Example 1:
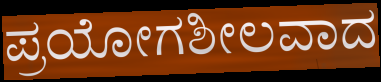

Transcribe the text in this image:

ಪ್ರಯೋಗಶೀಲವಾದ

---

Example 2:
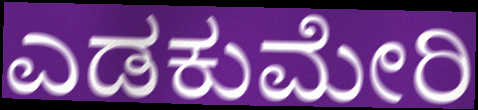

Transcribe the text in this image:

ಎಡಕುಮೇರಿ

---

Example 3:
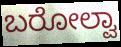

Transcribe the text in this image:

ಬರೋಲ್ವಾ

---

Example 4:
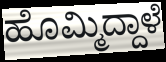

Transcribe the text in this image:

ಹೊಮ್ಮಿದ್ದಾಳೆ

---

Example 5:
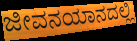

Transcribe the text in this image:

ಜೀವನಯಾನದಲ್ಲಿ